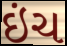
ઇંચ